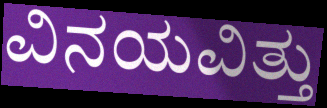
ವಿನಯವಿತ್ತು